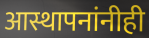
आस्थापनांनीही